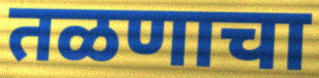
तळणाचा